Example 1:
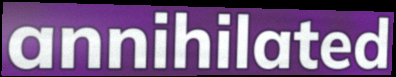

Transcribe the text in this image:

annihilated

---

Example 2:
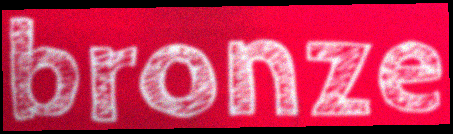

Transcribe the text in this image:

bronze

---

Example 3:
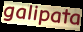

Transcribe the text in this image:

galipata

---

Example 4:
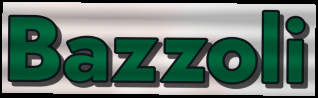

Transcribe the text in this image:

Bazzoli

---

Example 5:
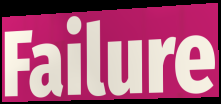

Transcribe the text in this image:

Failure